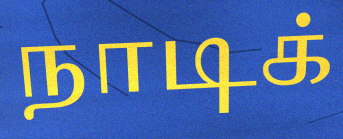
நாடிக்